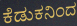
ಕೆಡುಕನಿಂದ